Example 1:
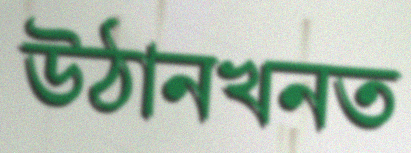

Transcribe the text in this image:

উঠানখনত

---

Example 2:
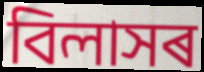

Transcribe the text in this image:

বিলাসৰ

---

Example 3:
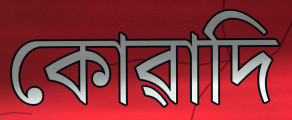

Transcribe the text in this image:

কোৱাদি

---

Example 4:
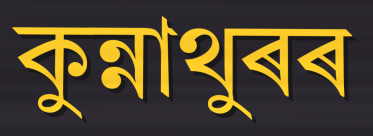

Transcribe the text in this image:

কুন্নাথুৰৰ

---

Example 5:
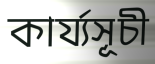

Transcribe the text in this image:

কাৰ্য্যসূচী